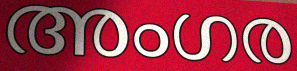
അംഗര